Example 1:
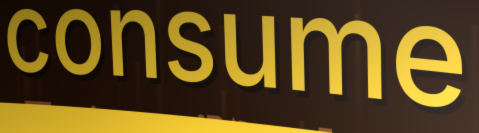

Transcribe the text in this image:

consume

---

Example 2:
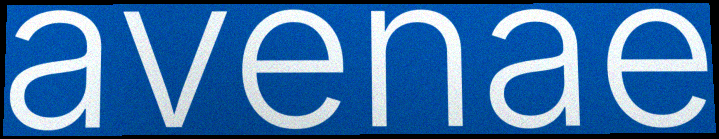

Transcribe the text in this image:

avenae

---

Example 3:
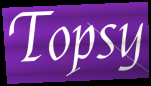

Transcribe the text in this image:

Topsy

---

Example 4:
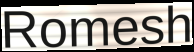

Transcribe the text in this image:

Romesh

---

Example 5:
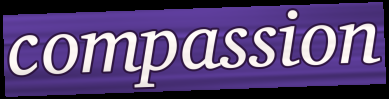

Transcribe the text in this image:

compassion